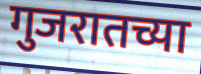
गुजरातच्या